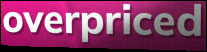
overpriced